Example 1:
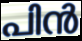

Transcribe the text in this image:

പിൻ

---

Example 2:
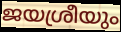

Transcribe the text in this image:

ജയശ്രീയും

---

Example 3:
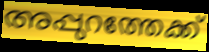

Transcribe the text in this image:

അപ്പുറത്തേക്ക്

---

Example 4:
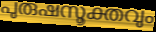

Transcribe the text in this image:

പുരുഷസൂക്തവും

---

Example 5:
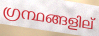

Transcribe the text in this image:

ഗ്രന്ഥങ്ങളില്